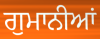
ਗੁਮਾਨੀਆਂ